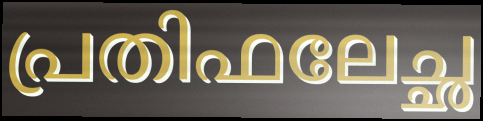
പ്രതിഫലേച്ഛ